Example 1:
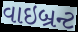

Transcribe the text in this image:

વાઇબ્રન્ટ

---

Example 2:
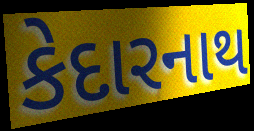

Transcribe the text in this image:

કેદારનાથ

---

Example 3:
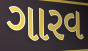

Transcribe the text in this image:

ગારવ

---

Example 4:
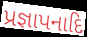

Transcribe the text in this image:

પ્રજ્ઞાપનાદિ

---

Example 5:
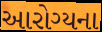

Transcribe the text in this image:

આરોગ્યના